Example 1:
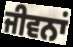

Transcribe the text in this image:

ਜੀਵਨਾਂ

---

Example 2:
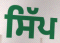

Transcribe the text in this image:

ਸਿੱਪ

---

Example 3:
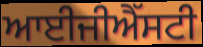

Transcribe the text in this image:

ਆਈਜੀਐੱਸਟੀ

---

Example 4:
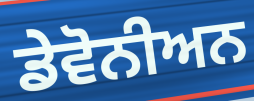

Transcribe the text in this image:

ਡੇਵੋਨੀਅਨ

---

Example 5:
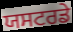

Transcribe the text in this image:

ਯਸਟਰਡੇ